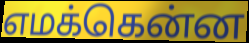
எமக்கென்ன